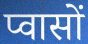
प्वासों